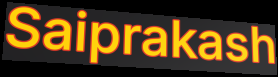
Saiprakash